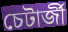
চেটাৰ্জী